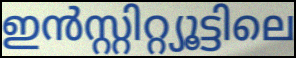
ഇൻസ്റ്റിറ്റ്യൂട്ടിലെ